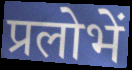
प्रलोभें